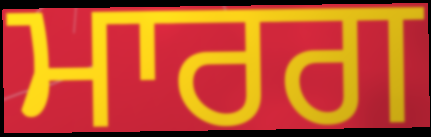
ਮਾਰਗ